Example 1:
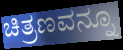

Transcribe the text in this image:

ಚಿತ್ರಣವನ್ನೂ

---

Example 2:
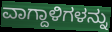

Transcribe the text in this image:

ವಾಗ್ದಾಳಿಗಳನ್ನು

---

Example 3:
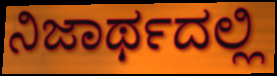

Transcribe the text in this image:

ನಿಜಾರ್ಥದಲ್ಲಿ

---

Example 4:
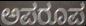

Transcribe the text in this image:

ಅಪರೂಪ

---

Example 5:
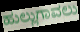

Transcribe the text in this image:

ಹುಲ್ಲುಗಾವಲು